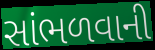
સાંભળવાની